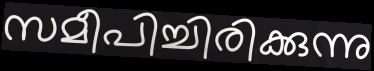
സമീപിച്ചിരിക്കുന്നു